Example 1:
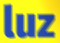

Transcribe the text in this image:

luz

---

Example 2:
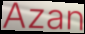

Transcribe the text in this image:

Azan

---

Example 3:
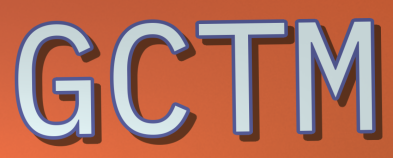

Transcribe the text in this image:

GCTM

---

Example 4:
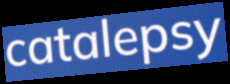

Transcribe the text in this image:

catalepsy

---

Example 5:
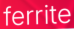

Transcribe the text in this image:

ferrite